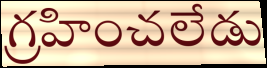
గ్రహించలేడు